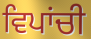
ਵਿਪਾਂਚੀ